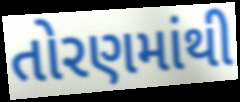
તોરણમાંથી